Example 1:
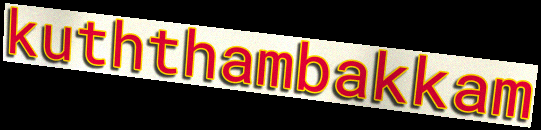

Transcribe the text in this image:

kuththambakkam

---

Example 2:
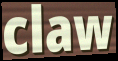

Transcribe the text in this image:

claw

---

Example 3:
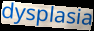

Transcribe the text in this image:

dysplasia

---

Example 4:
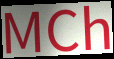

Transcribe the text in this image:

MCh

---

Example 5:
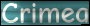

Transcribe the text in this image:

Crimea